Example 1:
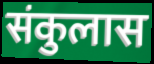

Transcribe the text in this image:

संकुलास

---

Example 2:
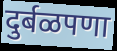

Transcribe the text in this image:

दुर्बळपणा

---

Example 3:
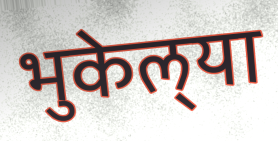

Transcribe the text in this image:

भुकेल्या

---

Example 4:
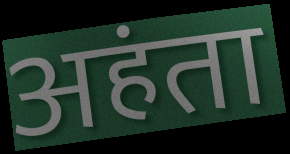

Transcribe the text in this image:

अहंता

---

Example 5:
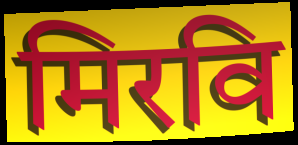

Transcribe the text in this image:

मिरवि